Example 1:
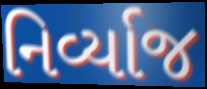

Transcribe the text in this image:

નિર્વ્યાજ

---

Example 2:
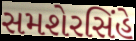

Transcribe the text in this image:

સમશેરસિંહે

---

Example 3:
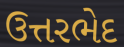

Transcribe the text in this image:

ઉત્તરભેદ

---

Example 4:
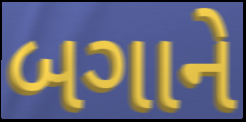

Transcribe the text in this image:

બગાને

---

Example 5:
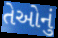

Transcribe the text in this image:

તેઓનું